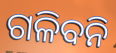
ଗଳିବନି